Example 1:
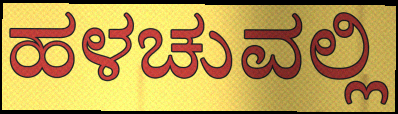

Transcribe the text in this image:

ಹಳಚುವಲ್ಲಿ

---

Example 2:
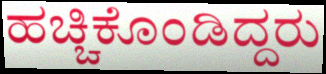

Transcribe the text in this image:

ಹಚ್ಚಿಕೊಂಡಿದ್ದರು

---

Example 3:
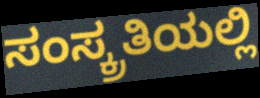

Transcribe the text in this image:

ಸಂಸ್ಕ್ರತಿಯಲ್ಲಿ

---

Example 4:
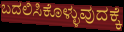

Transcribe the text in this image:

ಬದಲಿಸಿಕೊಳ್ಳುವುದಕ್ಕೆ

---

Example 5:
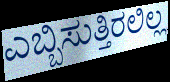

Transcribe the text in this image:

ಎಬ್ಬಿಸುತ್ತಿರಲಿಲ್ಲ